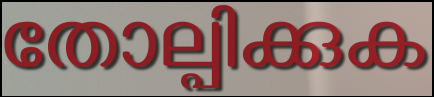
തോല്പിക്കുക